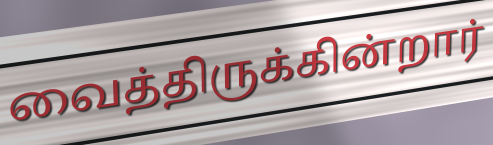
வைத்திருக்கின்றார்